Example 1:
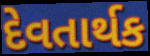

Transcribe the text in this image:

દેવતાર્થક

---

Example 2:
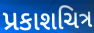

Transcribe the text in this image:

પ્રકાશચિત્ર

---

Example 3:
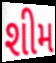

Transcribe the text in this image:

શીમ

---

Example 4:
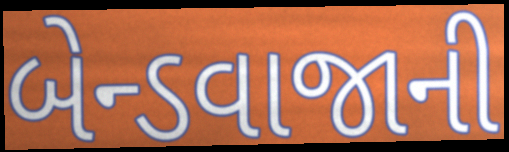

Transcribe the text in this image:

બેન્ડવાજાની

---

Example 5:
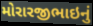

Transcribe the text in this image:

મોરારજીભાઇનું